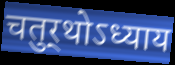
चतुर्थोऽध्याय